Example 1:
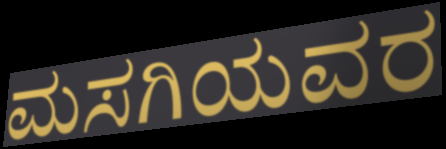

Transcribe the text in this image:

ಮಸಗಿಯವರ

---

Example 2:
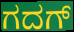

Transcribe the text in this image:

ಗದಗ್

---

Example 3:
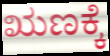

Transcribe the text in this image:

ಋಣಕ್ಕೆ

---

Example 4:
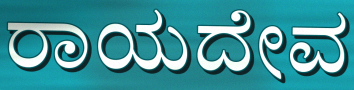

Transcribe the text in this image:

ರಾಯದೇವ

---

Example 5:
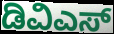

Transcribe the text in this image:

ಡಿವಿಎಸ್